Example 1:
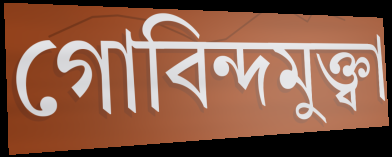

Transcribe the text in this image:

গোবিন্দমুক্ত্বা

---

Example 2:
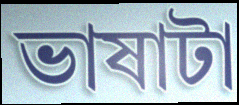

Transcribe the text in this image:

ভাষাটা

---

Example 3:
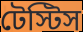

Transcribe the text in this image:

টেস্টিস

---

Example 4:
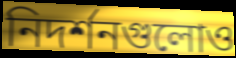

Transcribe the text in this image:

নিদর্শনগুলোও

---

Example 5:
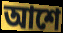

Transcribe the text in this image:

আশে